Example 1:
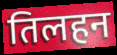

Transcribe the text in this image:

तिलहन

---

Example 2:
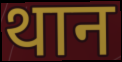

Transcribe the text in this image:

थान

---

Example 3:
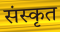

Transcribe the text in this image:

संस्‍कृत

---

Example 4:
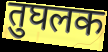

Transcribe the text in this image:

तुघलक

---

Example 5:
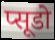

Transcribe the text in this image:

प्सूडो